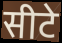
सीटे